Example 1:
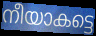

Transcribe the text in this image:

നീയാകട്ടെ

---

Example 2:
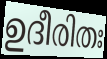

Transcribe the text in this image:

ഉദീരിതഃ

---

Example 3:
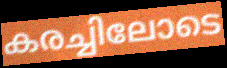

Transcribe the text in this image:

കരച്ചിലോടെ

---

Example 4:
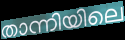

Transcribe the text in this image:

താന്നിയിലെ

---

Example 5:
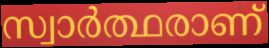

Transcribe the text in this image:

സ്വാർത്ഥരാണ്